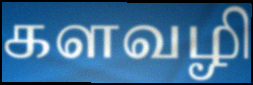
களவழி